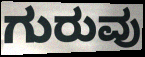
ಗುರುವು